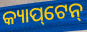
କ୍ୟାପ୍‌ଟେନ୍